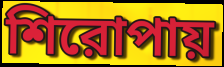
শিরোপায়